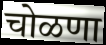
चोळणा